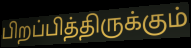
பிறப்பித்திருக்கும்